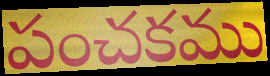
పంచకము